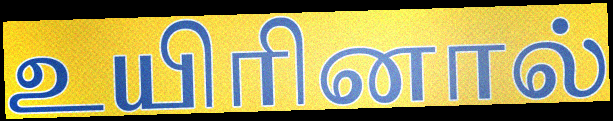
உயிரினால்